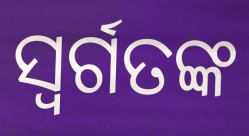
ସ୍ୱର୍ଗତଙ୍କ